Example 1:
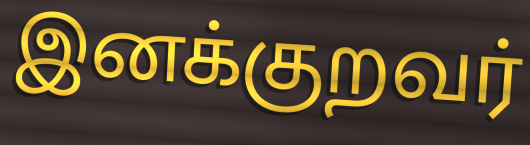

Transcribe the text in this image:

இனக்குறவர்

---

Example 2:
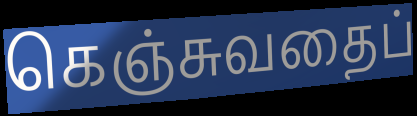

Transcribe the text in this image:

கெஞ்சுவதைப்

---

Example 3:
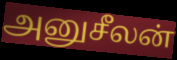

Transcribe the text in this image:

அனுசீலன்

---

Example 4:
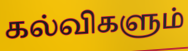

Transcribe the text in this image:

கல்விகளும்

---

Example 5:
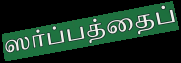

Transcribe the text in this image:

ஸர்ப்பத்தைப்